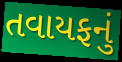
તવાયફનું